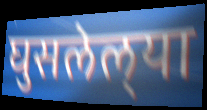
घुसलेल्या